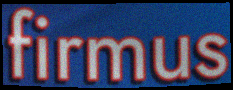
firmus